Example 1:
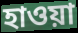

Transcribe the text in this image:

হাওয়া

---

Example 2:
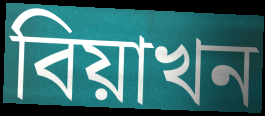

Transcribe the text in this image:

বিয়াখন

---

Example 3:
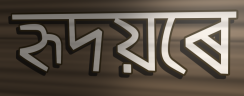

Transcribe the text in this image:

হৃদয়ৰে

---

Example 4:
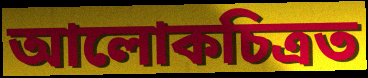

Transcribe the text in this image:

আলোকচিত্ৰত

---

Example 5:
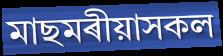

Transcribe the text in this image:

মাছমৰীয়াসকল